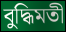
বুদ্ধিমতী